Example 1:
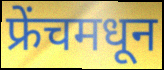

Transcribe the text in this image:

फ्रेंचमधून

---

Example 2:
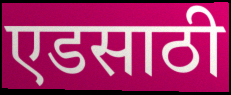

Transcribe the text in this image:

एडसाठी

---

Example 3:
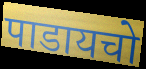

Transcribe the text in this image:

पाडायचो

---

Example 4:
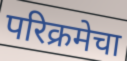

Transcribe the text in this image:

परिक्रमेचा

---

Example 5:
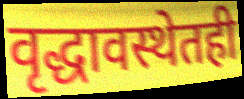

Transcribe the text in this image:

वृद्धावस्थेतही